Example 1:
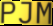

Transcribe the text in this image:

PJM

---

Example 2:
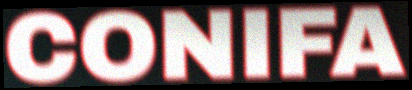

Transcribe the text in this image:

CONIFA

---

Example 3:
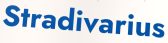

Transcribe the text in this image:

Stradivarius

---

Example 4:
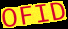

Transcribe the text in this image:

OFID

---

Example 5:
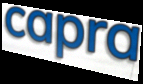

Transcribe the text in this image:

capra